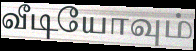
வீடியோவும்